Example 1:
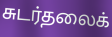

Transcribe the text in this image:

சுடர்தலைக்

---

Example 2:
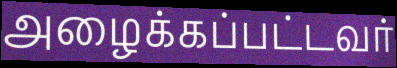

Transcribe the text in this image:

அழைக்கப்பட்டவர்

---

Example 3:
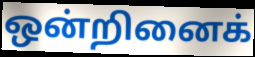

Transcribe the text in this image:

ஒன்றினைக்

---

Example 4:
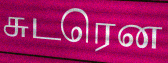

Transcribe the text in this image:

சுடரென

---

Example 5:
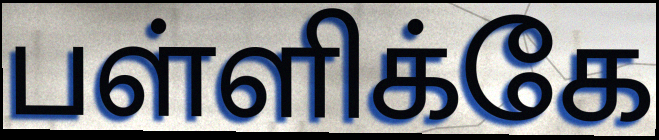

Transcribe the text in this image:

பள்ளிக்கே